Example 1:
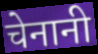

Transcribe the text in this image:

चेनानी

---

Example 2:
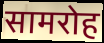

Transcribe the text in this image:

सामरोह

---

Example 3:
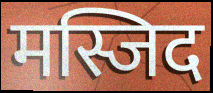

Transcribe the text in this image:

मस्जिद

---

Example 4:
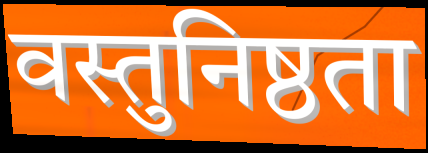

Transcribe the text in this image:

वस्तुनिष्ठता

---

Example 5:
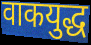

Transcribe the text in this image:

वाकयुद्ध